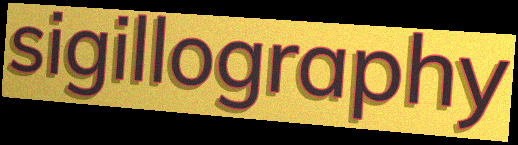
sigillography